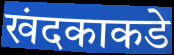
खंदकाकडे